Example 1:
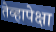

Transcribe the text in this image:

तेव्हापेक्षा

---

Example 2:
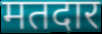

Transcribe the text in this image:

मतदार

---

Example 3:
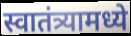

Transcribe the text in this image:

स्वातंत्र्यामध्ये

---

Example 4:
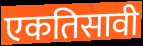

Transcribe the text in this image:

एकतिसावी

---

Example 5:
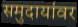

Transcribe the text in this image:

समुदायांवर